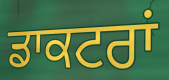
ਡਾਕਟਰਾਂ